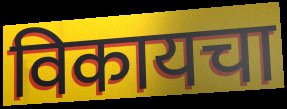
विकायचा